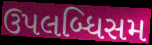
ઉપલબ્ધિસમ